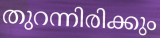
തുറന്നിരിക്കും